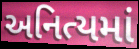
અનિત્યમાં